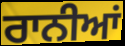
ਰਾਨੀਆਂ